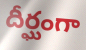
దీర్ఘంగా